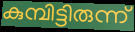
കുമ്പിട്ടിരുന്ന്